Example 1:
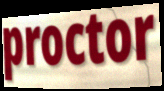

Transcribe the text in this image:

proctor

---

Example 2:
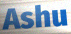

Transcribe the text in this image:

Ashu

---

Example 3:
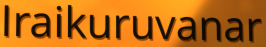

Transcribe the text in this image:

Iraikuruvanar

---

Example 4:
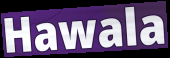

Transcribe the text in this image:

Hawala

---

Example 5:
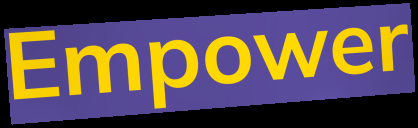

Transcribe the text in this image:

Empower